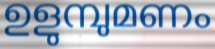
ഉളുമ്പുമണം